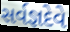
સર્વજ્ઞદેવે